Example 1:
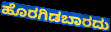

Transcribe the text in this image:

ಹೊರಗಿಡಬಾರದು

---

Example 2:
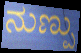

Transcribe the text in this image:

ನುಣ್ಪು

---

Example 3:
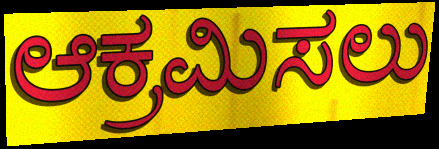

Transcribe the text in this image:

ಆಕ್ರಮಿಸಲು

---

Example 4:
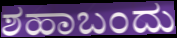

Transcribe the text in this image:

ಶಹಾಬಂದು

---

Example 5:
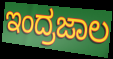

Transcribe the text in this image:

ಇಂದ್ರಜಾಲ